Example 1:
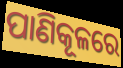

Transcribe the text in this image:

ପାଣିକୂଳରେ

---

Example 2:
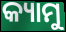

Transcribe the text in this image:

କ୍ୟାମୁ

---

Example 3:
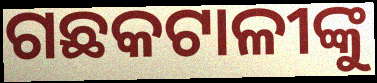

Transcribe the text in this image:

ଗଛକଟାଳୀଙ୍କୁ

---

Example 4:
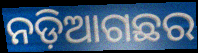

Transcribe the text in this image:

ନଡ଼ିଆଗଛର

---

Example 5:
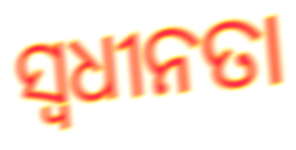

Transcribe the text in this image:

ସ୍ୱଧୀନତା